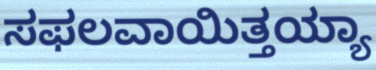
ಸಫಲವಾಯಿತ್ತಯ್ಯಾ